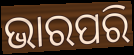
ଭାରପରି